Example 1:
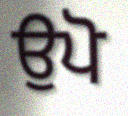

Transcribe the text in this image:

ਉਪੋ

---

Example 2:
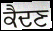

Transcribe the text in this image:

ਕੈਦਣ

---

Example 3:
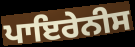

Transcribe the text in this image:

ਪਾਇਰੇਨੀਸ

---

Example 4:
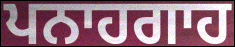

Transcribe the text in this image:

ਪਨਾਹਗਾਹ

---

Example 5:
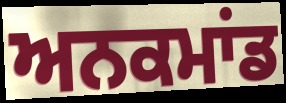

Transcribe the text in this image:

ਅਨਕਮਾਂਡ